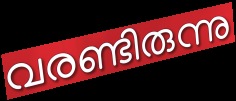
വരണ്ടിരുന്നു